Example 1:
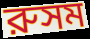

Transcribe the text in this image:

রুসম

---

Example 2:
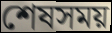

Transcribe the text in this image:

শেষসময়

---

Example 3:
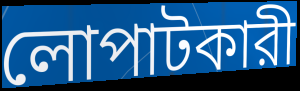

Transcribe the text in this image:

লোপাটকারী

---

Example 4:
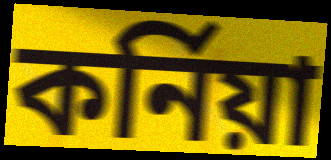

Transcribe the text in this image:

কর্নিয়া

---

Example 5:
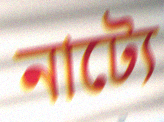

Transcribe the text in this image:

নাট্যে